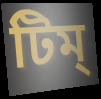
টিম্